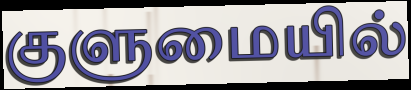
குளுமையில்